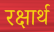
रक्षार्थ